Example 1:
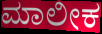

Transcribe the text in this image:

ಮಾಲೀಕ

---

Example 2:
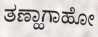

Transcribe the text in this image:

ತಣ್ಹಾಗಾಹೋ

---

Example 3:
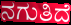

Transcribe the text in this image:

ನಗುತಿದೆ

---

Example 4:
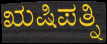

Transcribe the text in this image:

ಋಷಿಪತ್ನಿ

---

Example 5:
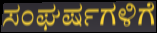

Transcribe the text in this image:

ಸಂಘರ್ಷಗಳಿಗೆ